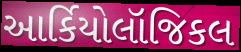
આર્કિયોલૉજિકલ